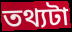
তথ্যটা